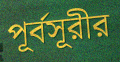
পূর্বসূরীর